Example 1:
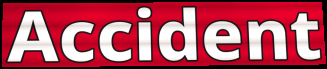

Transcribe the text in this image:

Accident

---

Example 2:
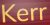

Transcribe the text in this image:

Kerr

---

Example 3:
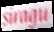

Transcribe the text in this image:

siragu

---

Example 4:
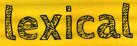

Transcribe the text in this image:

lexical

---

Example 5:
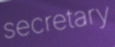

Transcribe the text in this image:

secretary